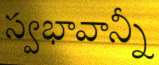
స్వభావాన్నీ